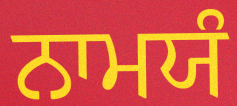
ਨਾਮਯੰ